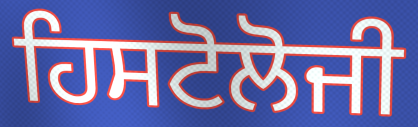
ਹਿਸਟੋਲੋਜੀ